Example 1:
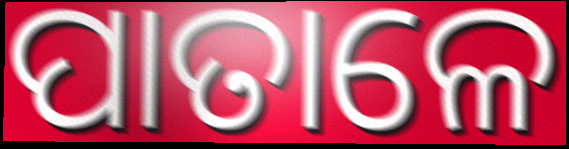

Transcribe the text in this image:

ପାତାଳେ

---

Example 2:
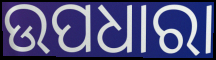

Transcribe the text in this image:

ଉପଧାରା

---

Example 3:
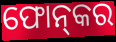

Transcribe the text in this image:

ଫୋନ୍‌କର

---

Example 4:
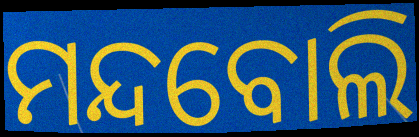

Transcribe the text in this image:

ମନ୍ଦବୋଲି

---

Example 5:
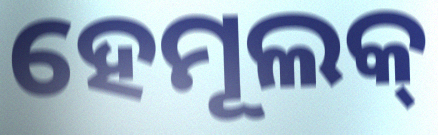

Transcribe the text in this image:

ହେମୂଲକ୍